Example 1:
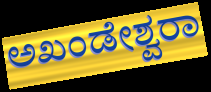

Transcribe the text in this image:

ಅಖಂಡೇಶ್ವರಾ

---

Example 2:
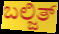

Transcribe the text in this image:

ಬಲ್ಜಿತ್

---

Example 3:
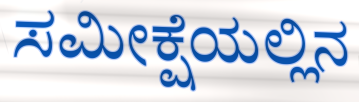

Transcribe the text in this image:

ಸಮೀಕ್ಷೆಯಲ್ಲಿನ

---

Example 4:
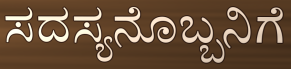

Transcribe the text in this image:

ಸದಸ್ಯನೊಬ್ಬನಿಗೆ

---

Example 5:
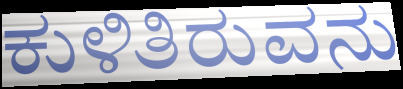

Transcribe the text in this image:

ಕುಳಿತಿರುವನು